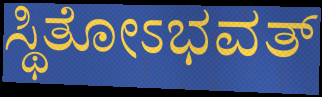
ಸ್ಥಿತೋಽಭವತ್